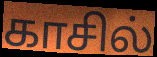
காசில்